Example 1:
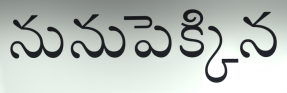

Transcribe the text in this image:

నునుపెక్కిన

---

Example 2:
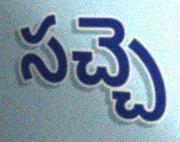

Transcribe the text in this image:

సచ్చె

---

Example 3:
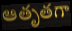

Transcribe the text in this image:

ఆతృతగా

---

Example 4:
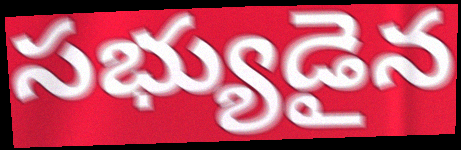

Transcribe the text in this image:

సభ్యుడైన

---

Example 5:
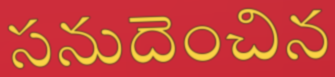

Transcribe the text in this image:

సనుదెంచిన